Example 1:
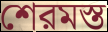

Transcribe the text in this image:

শেরমস্ত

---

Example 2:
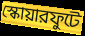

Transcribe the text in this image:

স্কোয়ারফুটে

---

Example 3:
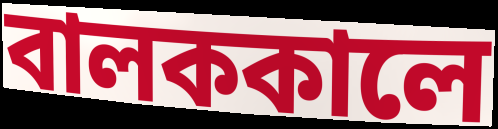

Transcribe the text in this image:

বালককালে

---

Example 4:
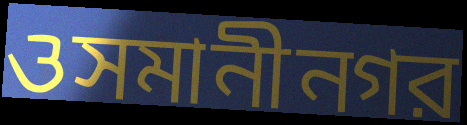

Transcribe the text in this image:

ওসমানীনগর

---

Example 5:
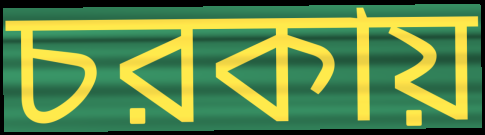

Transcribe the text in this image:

চরকায়